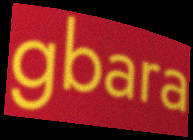
gbara